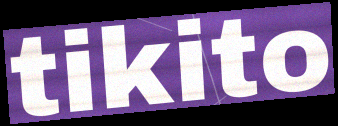
tikito